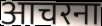
आचरना